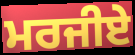
ਮਰਜੀਏ